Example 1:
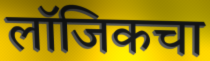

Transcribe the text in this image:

लॉजिकचा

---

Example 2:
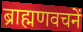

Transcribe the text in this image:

ब्राह्मणवचनें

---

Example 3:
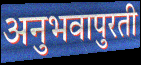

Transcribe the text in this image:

अनुभवापुरती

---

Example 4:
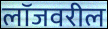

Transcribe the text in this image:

लॉजवरील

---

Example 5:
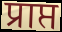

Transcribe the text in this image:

प्राप्त